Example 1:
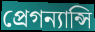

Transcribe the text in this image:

প্রেগন্যান্সি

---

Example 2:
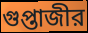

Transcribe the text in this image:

গুপ্তাজীর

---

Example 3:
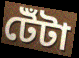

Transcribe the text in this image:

টেঁটা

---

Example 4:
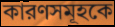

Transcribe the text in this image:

কারণসমূহকে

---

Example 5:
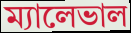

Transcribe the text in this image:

ম্যালেভাল